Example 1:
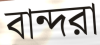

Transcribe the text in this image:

বান্দরা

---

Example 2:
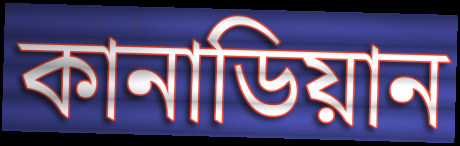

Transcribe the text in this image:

কানাডিয়ান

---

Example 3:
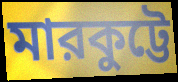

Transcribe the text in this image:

মারকুট্টে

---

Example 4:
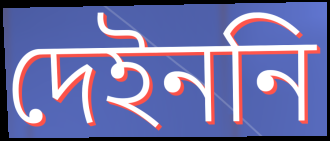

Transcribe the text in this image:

দেইননি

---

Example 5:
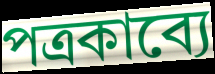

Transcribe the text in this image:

পত্রকাব্যে